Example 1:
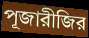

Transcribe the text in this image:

পূজারীজির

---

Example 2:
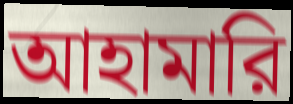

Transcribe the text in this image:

আহামারি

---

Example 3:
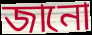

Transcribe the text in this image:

জানো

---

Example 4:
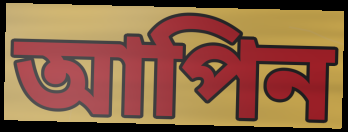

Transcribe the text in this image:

আপিন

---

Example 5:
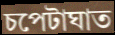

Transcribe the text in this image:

চপেটাঘাত